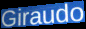
Giraudo